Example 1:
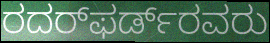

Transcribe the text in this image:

ರದರ್‌ಫರ್ಡ್‌ರವರು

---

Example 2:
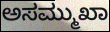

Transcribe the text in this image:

ಅಸಮ್ಮುಖಾ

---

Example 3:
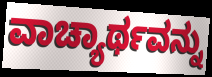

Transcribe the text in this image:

ವಾಚ್ಯಾರ್ಥವನ್ನು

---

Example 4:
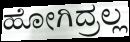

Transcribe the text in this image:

ಹೋಗಿದ್ರಲ್ಲ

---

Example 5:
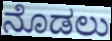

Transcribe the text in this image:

ನೊಡಲು